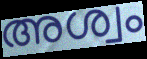
അശ്വം